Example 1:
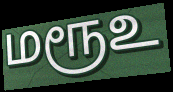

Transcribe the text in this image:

மரூஉ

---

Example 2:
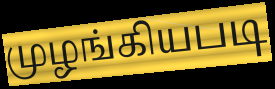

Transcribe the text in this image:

முழங்கியபடி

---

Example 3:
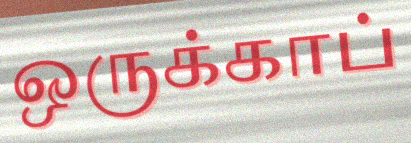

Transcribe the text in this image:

ஒருக்காப்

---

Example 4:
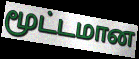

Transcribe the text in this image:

மூட்டமான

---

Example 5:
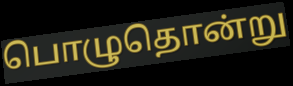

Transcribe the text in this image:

பொழுதொன்று